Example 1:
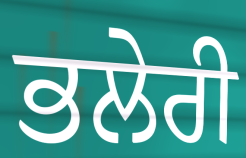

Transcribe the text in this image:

ਭਲੇਰੀ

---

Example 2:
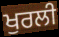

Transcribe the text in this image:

ਖੁਰਲੀ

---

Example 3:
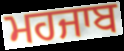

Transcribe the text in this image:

ਮਹਜਾਬ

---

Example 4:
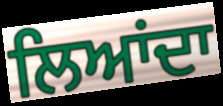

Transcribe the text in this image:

ਲਿਆਂਦਾ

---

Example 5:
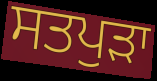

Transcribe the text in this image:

ਸਤਪੁੜਾ